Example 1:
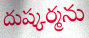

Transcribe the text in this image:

దుష్కర్మను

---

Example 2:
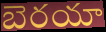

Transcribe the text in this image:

బెరయా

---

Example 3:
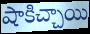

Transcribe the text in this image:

షాకిచ్చాయి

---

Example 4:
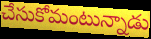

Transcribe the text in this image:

చేసుకోమంటున్నాడు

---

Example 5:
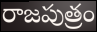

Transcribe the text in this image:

రాజపుత్రం